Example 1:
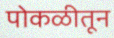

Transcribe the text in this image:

पोकळीतून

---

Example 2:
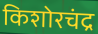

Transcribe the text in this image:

किशोरचंद्र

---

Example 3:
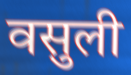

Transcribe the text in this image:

वसुली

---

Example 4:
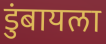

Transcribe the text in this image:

डुंबायला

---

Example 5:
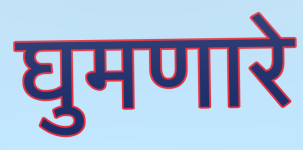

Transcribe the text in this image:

घुमणारे